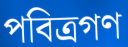
পবিত্রগণ